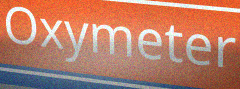
Oxymeter